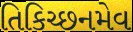
તિકિચ્છનમેવ